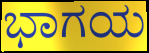
ಭಾಗಯ